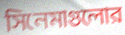
সিনেমাগুলোর